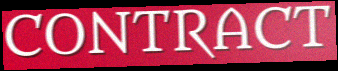
CONTRACT